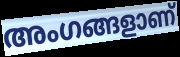
അംഗങ്ങളാണ്